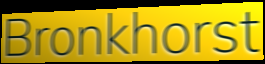
Bronkhorst